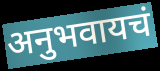
अनुभवायचं